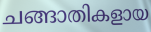
ചങ്ങാതികളായ